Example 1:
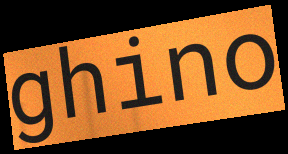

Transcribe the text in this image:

ghino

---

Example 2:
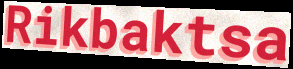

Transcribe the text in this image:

Rikbaktsa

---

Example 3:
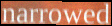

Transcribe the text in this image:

narrowed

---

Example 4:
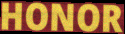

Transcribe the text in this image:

HONOR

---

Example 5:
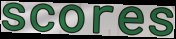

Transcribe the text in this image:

scores